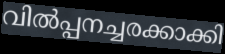
വിൽപ്പനച്ചരക്കാക്കി